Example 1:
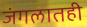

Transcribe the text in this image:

जंगलातही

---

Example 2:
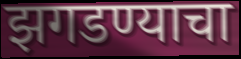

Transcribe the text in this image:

झगडण्याचा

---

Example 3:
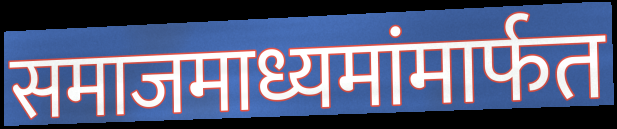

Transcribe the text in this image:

समाजमाध्यमांमार्फत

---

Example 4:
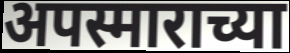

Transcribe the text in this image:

अपस्माराच्या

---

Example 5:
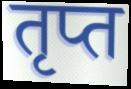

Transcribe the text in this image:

तृप्त